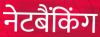
नेटबैंकिंग